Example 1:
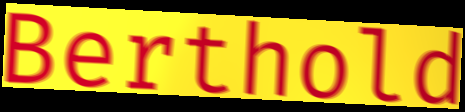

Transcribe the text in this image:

Berthold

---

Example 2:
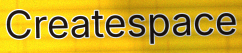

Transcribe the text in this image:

Createspace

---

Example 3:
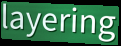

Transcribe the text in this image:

layering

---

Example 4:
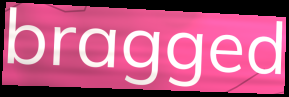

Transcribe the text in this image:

bragged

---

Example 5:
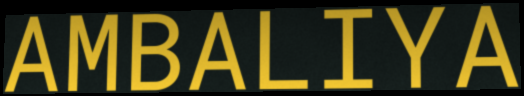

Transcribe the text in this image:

AMBALIYA